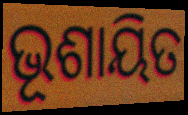
ଭୂଶାୟିତ